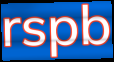
rspb